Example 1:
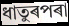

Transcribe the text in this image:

ধাতুৰপৰা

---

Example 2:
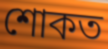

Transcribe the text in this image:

শোকত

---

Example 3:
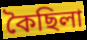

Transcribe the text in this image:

কৈছিলা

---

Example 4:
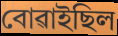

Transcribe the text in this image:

বোৱাইছিল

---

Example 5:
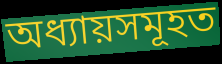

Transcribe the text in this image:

অধ্যায়সমূহত